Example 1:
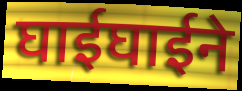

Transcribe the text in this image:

घाईघाईने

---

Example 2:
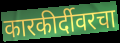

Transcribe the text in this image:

कारकीर्दीवरचा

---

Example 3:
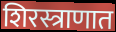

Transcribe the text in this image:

शिरस्त्राणात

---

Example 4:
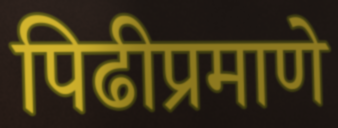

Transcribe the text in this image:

पिढीप्रमाणे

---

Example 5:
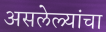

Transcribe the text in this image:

असलेल्यांचा